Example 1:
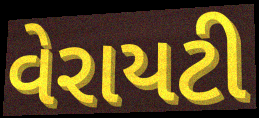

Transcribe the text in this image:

વેરાયટી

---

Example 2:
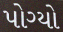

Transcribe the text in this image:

પોગ્યો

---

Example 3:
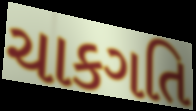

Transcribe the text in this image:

ચાકગતિ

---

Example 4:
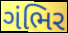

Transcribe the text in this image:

ગંભિર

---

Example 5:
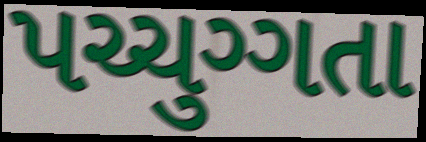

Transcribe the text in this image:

પચ્ચુગ્ગતા